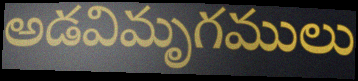
అడవిమృగములు